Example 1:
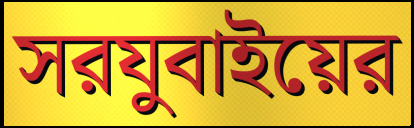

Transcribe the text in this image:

সরযুবাইয়ের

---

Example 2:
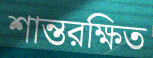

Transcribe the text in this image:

শান্তরক্ষিত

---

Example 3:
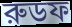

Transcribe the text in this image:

রুডফ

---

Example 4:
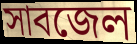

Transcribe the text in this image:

সাবজেল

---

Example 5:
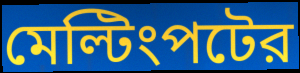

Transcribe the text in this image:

মেল্টিংপটের